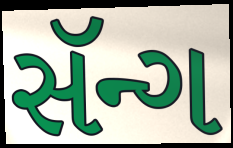
સૅન્ગ